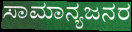
ಸಾಮಾನ್ಯಜನರ